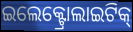
ଇଲେକ୍ଟ୍ରୋଲାଇଟିକ୍